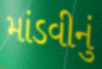
માંડવીનું